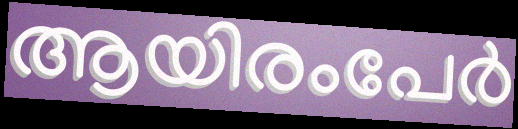
ആയിരംപേർ